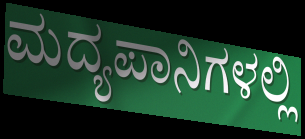
ಮದ್ಯಪಾನಿಗಳಲ್ಲಿ